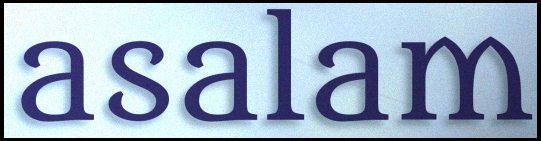
asalam